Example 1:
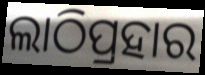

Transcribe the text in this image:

ଲାଠିପ୍ରହାର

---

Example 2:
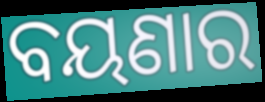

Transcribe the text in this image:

ବୟଣାର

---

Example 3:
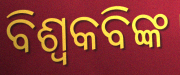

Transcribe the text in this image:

ବିଶ୍ୱକବିଙ୍କ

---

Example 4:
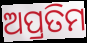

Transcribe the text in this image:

ଅପ୍ରତିମ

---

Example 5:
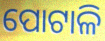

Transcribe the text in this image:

ପୋଟାଳି